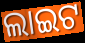
ଲାଇଟ